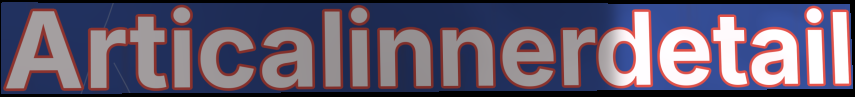
Articalinnerdetail